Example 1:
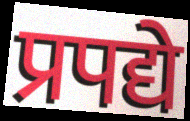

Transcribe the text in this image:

प्रपद्ये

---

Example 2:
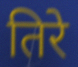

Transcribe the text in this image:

तिरे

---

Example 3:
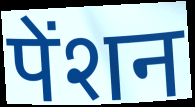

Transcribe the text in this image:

पेंशन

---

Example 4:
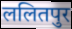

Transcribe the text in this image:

ललितपुर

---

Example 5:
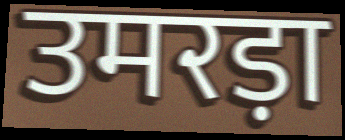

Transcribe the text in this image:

उमरड़ा